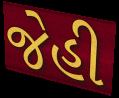
જેહી